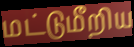
மட்டுமீறிய